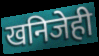
खनिजेही